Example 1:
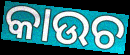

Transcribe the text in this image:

କାଉଚ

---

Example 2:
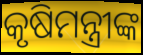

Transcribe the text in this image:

କୃଷିମନ୍ତ୍ରୀଙ୍କ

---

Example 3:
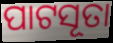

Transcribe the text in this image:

ପାଟସୂତା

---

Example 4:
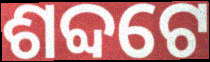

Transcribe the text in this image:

ଶବ୍ଦଟେ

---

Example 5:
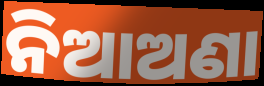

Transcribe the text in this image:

ନିଆଅଣା